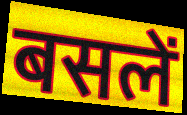
बसलें